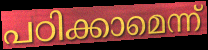
പഠിക്കാമെന്ന്